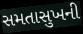
સમતાસુખની